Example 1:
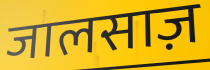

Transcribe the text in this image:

जालसाज़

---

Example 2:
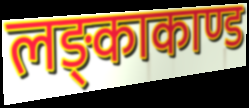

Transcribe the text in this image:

लङ्काकाण्ड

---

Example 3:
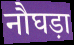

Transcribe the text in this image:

नौघड़ा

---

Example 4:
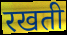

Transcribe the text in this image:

रखती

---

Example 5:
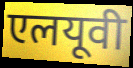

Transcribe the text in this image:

एलयूवी